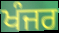
ਖੰਜਰ